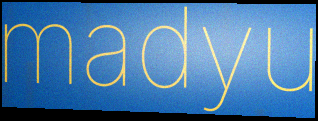
madyu